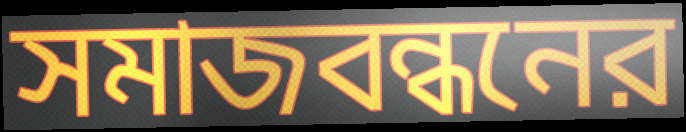
সমাজবন্ধনের